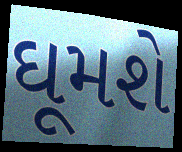
ઘૂમશે